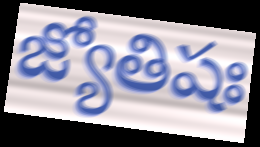
జ్యోతిషః